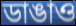
ডাঙাও